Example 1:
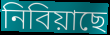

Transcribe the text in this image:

নিবিয়াছে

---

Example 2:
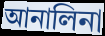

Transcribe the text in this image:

আনালিনা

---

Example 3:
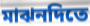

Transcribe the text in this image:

মাঝনদিতে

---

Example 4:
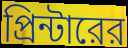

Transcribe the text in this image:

প্রিন্টারের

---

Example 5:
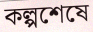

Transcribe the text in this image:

কল্পশেষে